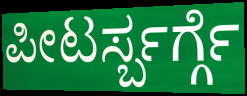
ಪೀಟರ್ಸ್ಬರ್ಗ್ಗೆ